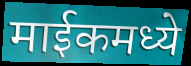
माईकमध्ये